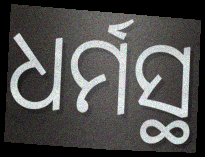
ଧର୍ମସ୍ଥ